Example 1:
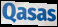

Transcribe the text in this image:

Qasas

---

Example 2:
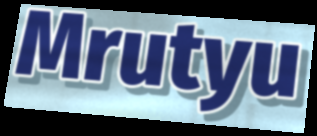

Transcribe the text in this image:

Mrutyu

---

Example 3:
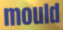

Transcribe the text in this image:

mould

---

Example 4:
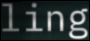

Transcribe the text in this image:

ling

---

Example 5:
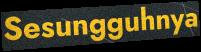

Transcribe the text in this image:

Sesungguhnya